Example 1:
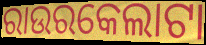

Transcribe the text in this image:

ରାଉରକେଲାଟା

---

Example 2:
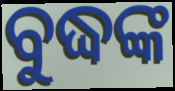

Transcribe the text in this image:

ବୁଦ୍ଧଙ୍କ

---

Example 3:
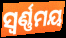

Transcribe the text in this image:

ସ୍ୱର୍ଣ୍ଣମୟ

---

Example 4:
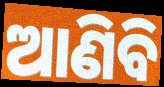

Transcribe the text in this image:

ଆଣିବି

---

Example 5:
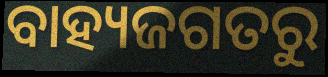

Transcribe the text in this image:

ବାହ୍ୟଜଗତରୁ